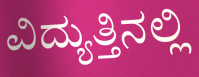
ವಿದ್ಯುತ್ತಿನಲ್ಲಿ